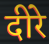
दीरे